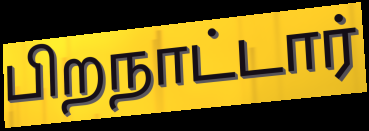
பிறநாட்டார்